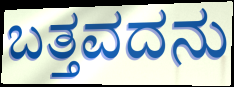
ಬತ್ತವದನು